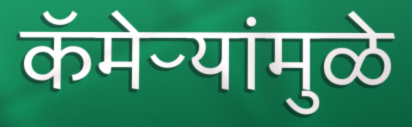
कॅमेऱ्यांमुळे